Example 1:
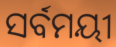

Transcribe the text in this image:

ସର୍ବମୟୀ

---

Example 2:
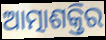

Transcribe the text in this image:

ଆତ୍ମାଶକ୍ତିର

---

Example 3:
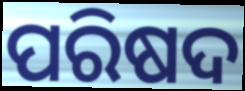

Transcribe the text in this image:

ପରିଷଦ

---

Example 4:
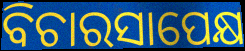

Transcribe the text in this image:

ବିଚାରସାପେକ୍ଷ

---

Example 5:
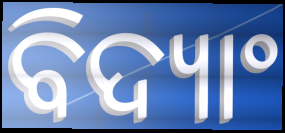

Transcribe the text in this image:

ବିଦ୍ଯାଂ